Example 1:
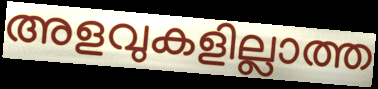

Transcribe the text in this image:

അളവുകളില്ലാത്ത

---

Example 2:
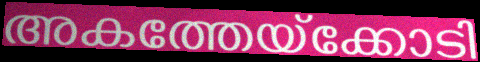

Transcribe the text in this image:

അകത്തേയ്‌ക്കോടി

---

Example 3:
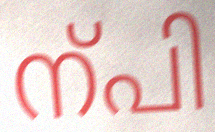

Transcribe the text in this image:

ന്പി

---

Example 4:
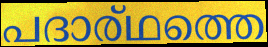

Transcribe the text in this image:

പദാര്ഥത്തെ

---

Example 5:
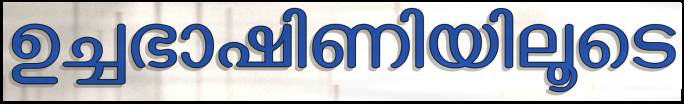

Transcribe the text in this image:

ഉച്ചഭാഷിണിയിലൂടെ